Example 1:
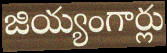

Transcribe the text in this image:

జియ్యంగార్లు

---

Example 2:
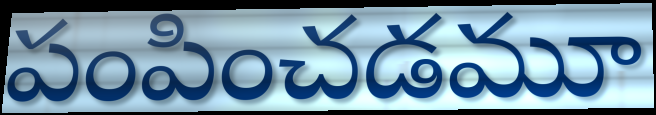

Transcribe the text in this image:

పంపించడమూ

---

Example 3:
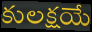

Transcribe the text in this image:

కులక్షయే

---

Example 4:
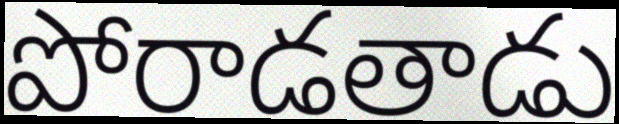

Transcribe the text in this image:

పోరాడతాడు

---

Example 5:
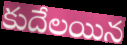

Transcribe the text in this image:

కుదేలయిన